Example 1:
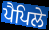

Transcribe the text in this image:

ਪੈਪਿਲੇ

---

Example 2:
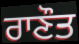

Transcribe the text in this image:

ਰਾਣੌਤ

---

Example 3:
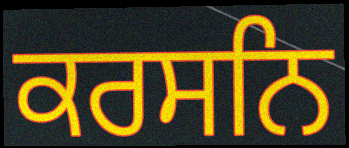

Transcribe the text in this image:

ਕਰਸਨਿ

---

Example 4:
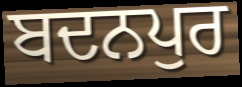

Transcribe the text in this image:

ਬਦਨਪੁਰ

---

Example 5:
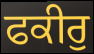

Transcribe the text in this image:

ਫਕੀਰੁ